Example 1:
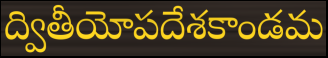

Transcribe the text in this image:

ద్వితీయోపదేశకాండమ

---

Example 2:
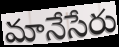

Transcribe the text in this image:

మానేసేరు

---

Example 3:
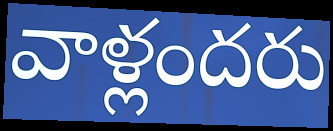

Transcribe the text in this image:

వాళ్లందరు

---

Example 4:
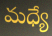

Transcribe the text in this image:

మధ్యే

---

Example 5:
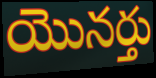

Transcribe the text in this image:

యొనర్తు